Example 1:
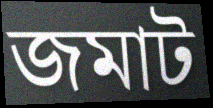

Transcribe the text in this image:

জমাট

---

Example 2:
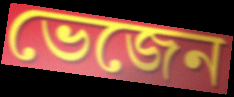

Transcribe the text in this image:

ভেজেন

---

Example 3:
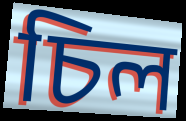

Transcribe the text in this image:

চিল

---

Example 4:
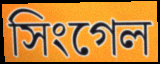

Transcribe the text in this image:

সিংগেল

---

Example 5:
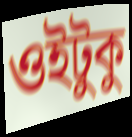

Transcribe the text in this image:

ওইটুকু